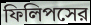
ফিলিপসের